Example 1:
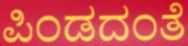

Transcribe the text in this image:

ಪಿಂಡದಂತೆ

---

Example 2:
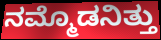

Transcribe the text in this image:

ನಮ್ಮೊಡನಿತ್ತು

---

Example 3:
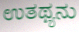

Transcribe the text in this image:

ಉತಥ್ಯನು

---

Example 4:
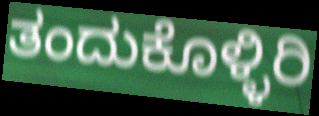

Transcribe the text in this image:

ತಂದುಕೊಳ್ಳಿರಿ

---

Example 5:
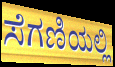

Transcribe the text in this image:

ಸೆಗಣಿಯಲ್ಲಿ